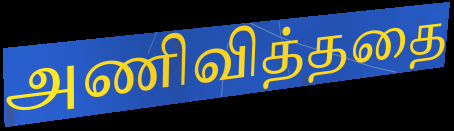
அணிவித்ததை